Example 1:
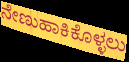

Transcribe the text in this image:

ನೇಣುಹಾಕಿಕೊಳ್ಳಲು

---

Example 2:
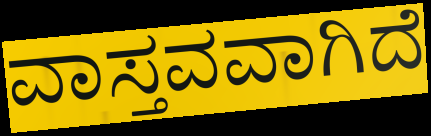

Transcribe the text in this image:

ವಾಸ್ತವವಾಗಿದೆ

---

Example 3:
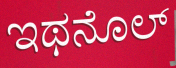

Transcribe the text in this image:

ಇಥನೊಲ್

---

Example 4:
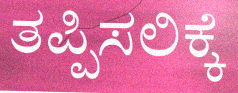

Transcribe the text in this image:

ತಪ್ಪಿಸಲಿಕ್ಕೆ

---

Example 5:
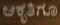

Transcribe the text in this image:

ಆಕೃತಿಗೂ